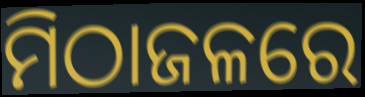
ମିଠାଜଳରେ